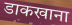
डाकखाना